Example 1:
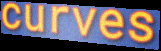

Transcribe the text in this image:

curves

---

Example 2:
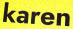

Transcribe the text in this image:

karen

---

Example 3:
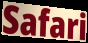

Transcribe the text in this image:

Safari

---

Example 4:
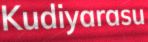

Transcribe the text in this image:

Kudiyarasu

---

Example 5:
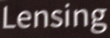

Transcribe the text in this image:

Lensing